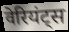
वेरियंट्स